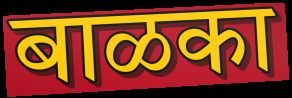
बाळका